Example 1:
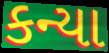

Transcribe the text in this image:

કન્યા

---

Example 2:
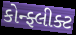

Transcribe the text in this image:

કોન્ફ્લીક્ટ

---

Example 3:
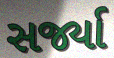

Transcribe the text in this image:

સર્જ્યા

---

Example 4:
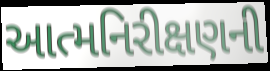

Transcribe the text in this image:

આત્મનિરીક્ષણની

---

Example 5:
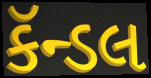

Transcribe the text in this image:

કૅન્ડલ